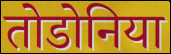
तोडोनिया